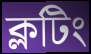
ক্লটিং